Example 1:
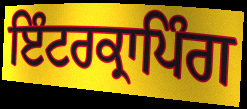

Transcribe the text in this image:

ਇੰਟਰਕ੍ਰਾਪਿੰਗ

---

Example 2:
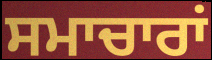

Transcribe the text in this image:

ਸਮਾਚਾਰਾਂ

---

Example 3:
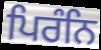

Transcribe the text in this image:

ਪਿਰੰਨਿ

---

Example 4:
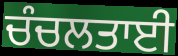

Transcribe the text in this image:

ਚੰਚਲਤਾਈ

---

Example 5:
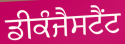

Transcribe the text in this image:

ਡੀਕੰਜੈਸਟੈਂਟ